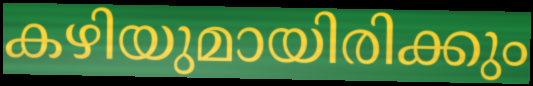
കഴിയുമായിരിക്കും